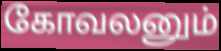
கோவலனும்